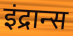
इंद्रान्स